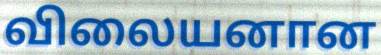
விலையனான